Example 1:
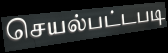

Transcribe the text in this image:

செயல்பட்டபடி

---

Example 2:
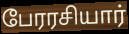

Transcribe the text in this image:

பேரரசியார்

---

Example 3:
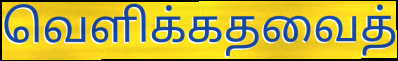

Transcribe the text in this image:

வெளிக்கதவைத்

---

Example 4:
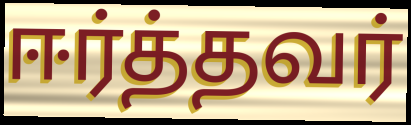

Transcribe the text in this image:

ஈர்த்தவர்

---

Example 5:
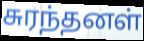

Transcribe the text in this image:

சுரந்தனள்